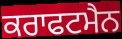
ਕਰਾਫਟਮੈਨ